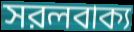
সরলবাক্য